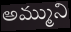
అమ్ముని